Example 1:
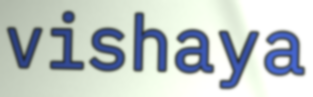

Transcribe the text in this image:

vishaya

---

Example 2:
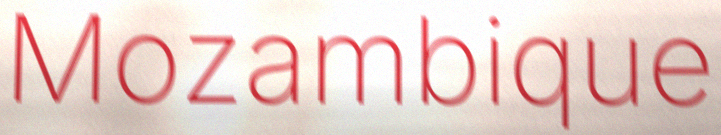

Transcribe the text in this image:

Mozambique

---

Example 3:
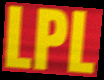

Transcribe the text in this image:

LPL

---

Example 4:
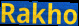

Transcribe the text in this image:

Rakho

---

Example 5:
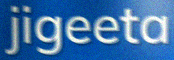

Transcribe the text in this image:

jigeeta